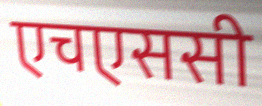
एचएससी